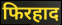
फिरहाद